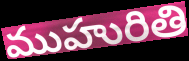
ముహురితి